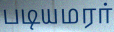
படியமரர்